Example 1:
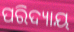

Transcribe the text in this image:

ପରିଦ୍ୟାୟ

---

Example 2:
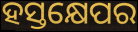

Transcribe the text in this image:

ହସ୍ତକ୍ଷେପର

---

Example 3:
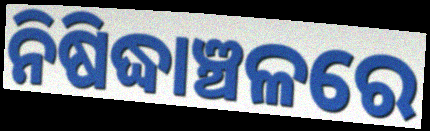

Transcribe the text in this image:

ନିଷିଦ୍ଧାଞ୍ଚଳରେ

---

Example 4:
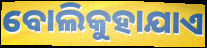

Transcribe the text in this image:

ବୋଲିକୁହାଯାଏ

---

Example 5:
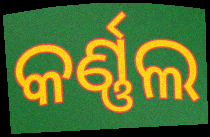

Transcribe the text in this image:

କର୍ଣ୍ଣଲ